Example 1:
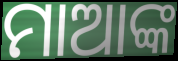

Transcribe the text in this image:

ମାଆଙ୍କ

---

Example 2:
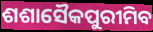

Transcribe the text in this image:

ଶଶାସୈକପୁରୀମିବ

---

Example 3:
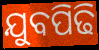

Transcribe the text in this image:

ଯୁବପିଢି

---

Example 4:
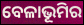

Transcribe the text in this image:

ବେଳାଭୂମିର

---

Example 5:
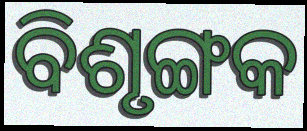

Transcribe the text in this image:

ବିଶୃଙ୍ଗକ